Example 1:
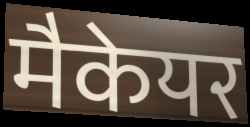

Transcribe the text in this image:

मैकेयर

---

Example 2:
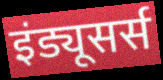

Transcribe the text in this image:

इंड्यूसर्स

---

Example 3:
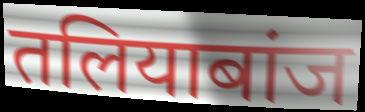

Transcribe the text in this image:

तलियाबांज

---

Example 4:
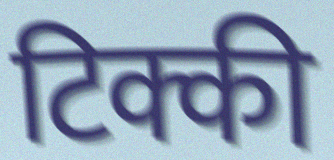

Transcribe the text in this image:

टिक्‍की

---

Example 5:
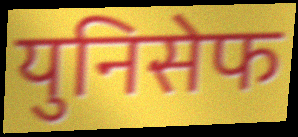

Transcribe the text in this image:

युनिसेफ